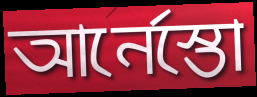
আর্নেস্তো